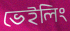
ভেইলিং